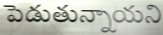
పెడుతున్నాయని